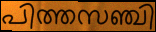
പിത്തസഞ്ചി